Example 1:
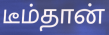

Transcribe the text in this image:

டீம்தான்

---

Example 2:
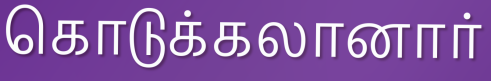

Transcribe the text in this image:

கொடுக்கலானார்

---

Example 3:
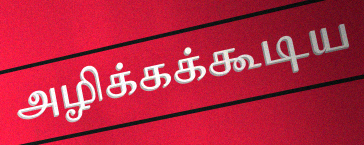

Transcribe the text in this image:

அழிக்கக்கூடிய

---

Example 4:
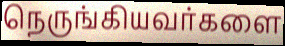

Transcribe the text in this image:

நெருங்கியவர்களை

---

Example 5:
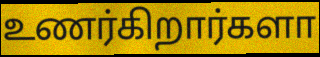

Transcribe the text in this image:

உணர்கிறார்களா